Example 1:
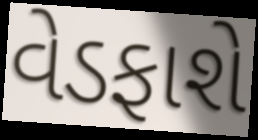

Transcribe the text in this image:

વેડફાશે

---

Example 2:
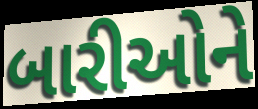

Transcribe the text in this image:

બારીઓને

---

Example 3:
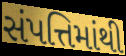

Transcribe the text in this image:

સંપત્તિમાંથી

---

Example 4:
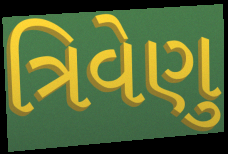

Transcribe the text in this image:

ત્રિવેણુ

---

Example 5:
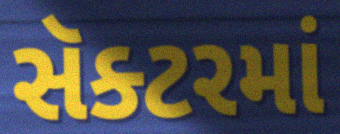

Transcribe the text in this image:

સૅક્ટરમાં